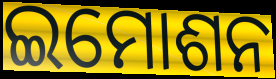
ଇମୋଶନ